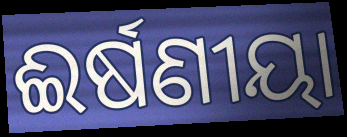
ଈର୍ଷଣୀୟା